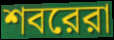
শবরেরা